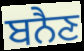
ਬਨੈਣ